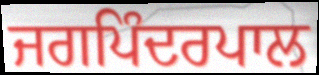
ਜਗਪਿੰਦਰਪਾਲ